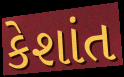
કેશાંત